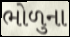
ભોળુના